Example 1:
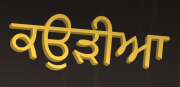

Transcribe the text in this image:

ਕਉੜੀਆ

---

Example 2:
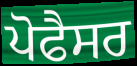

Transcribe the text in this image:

ਪੋਫੈਸਰ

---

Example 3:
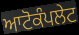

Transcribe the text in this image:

ਆਟੋਕੰਪਲੇਟ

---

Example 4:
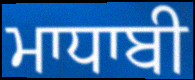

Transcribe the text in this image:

ਮਾਧਾਬੀ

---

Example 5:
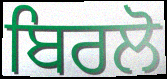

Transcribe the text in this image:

ਬਿਰਲੋ